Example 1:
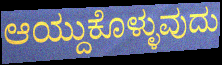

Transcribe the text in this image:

ಆಯ್ದುಕೊಳ್ಳುವುದು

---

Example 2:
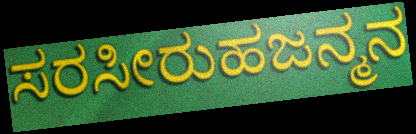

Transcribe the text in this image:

ಸರಸೀರುಹಜನ್ಮನ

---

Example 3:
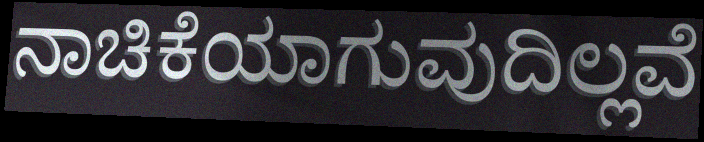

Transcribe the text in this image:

ನಾಚಿಕೆಯಾಗುವುದಿಲ್ಲವೆ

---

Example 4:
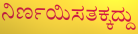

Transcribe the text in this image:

ನಿರ್ಣಯಿಸತಕ್ಕದ್ದು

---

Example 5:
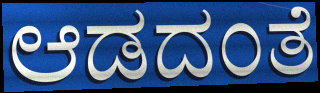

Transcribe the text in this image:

ಆಡದಂತೆ